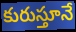
కురుస్తూనే